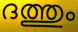
ദത്തും